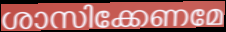
ശാസിക്കേണമേ